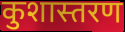
कुशास्तरण